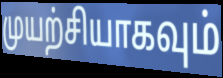
முயற்சியாகவும்